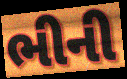
ભીની